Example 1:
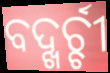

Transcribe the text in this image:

ବଦ୍ଖର୍ଚ୍ଚୀ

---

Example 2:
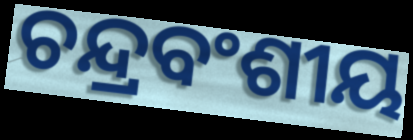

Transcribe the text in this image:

ଚନ୍ଦ୍ରବଂଶୀୟ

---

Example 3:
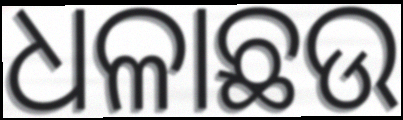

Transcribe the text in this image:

ଧଳାଛଉ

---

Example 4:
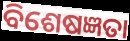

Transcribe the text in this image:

ବିଶେଷଜ୍ଞତା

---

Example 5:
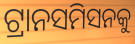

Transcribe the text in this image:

ଟ୍ରାନସମିସନକୁ